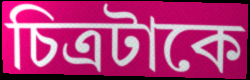
চিত্রটাকে